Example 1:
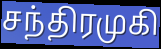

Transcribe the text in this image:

சந்திரமுகி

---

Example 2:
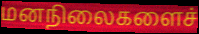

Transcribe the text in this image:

மனநிலைகளைச்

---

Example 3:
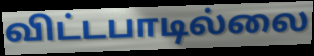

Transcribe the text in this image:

விட்டபாடில்லை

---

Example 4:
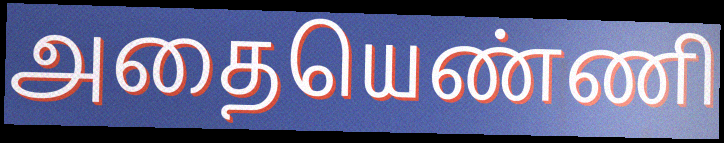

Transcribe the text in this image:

அதையெண்ணி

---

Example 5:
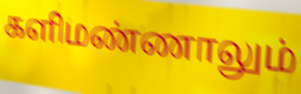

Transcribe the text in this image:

களிமண்ணாலும்